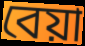
বেয়া